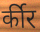
र्कीर